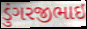
ડુંગરજીભાઇ